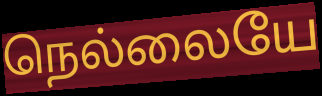
நெல்லையே